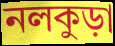
নলকুড়া